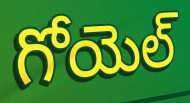
గోయెల్